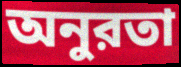
অনুরতা